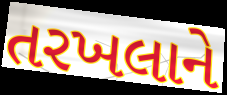
તરખલાને